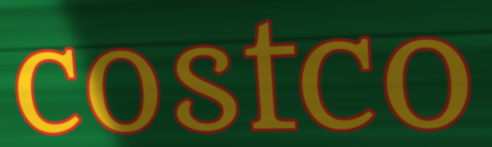
costco